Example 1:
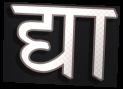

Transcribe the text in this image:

द्या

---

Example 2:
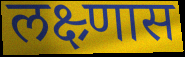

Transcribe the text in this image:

लक्ष्र्णास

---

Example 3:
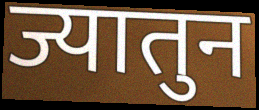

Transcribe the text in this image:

ज्यातुन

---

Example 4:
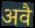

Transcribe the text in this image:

अवै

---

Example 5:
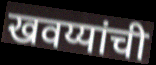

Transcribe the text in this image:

खवय्यांची